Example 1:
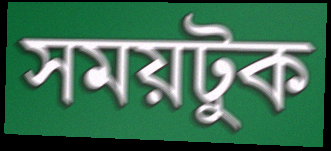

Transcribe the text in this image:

সময়টুক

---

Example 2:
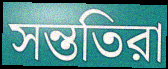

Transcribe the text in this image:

সন্ততিরা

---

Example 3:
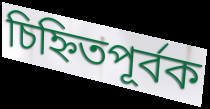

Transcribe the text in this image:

চিহ্নিতপূর্বক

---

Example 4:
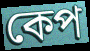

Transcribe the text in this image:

কেপ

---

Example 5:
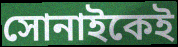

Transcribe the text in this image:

সোনাইকেই